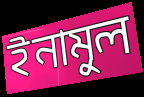
ইনামুল